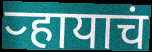
ऱ्हायाचं